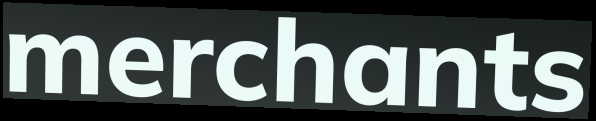
merchants